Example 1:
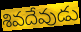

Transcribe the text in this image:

శివదేవుడు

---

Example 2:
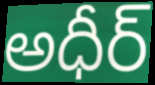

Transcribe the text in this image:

అధీర్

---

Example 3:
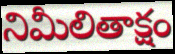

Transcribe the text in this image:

నిమీలితాక్షం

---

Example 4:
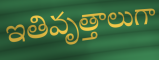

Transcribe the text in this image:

ఇతివృత్తాలుగా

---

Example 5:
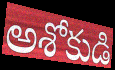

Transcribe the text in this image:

అశోకుడి